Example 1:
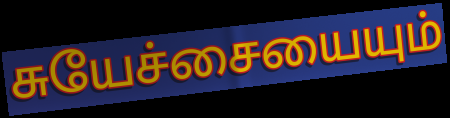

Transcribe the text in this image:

சுயேச்சையையும்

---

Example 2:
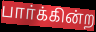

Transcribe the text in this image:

பார்க்கின்ற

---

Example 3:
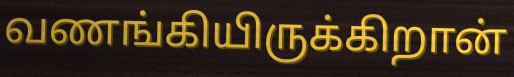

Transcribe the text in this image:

வணங்கியிருக்கிறான்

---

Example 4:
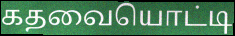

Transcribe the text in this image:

கதவையொட்டி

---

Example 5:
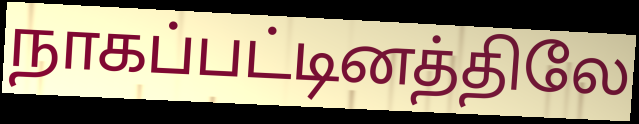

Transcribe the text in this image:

நாகப்பட்டினத்திலே